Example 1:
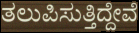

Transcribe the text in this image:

ತಲುಪಿಸುತ್ತಿದ್ದೇವೆ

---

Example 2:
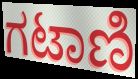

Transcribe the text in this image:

ಗಟಾಣಿ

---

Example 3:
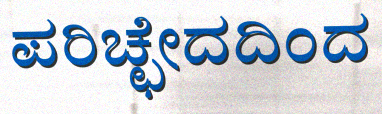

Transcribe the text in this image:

ಪರಿಚ್ಛೇದದಿಂದ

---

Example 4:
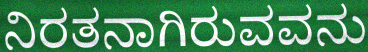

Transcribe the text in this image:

ನಿರತನಾಗಿರುವವನು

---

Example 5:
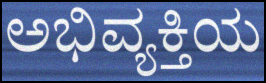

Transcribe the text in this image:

ಅಭಿವ್ಯಕ್ತಿಯ